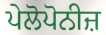
ਪੇਲੋਪੋਨੀਜ਼